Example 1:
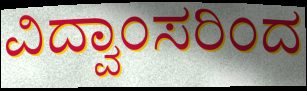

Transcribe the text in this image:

ವಿದ್ವಾಂಸರಿಂದ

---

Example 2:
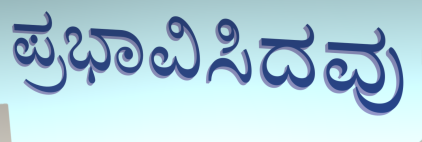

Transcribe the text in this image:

ಪ್ರಭಾವಿಸಿದವು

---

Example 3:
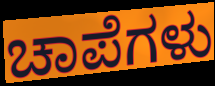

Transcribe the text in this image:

ಚಾಪೆಗಳು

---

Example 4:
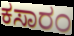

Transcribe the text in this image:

ಕಸಾರಂ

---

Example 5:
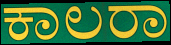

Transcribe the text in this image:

ಕಾಲರಾ